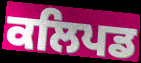
ਕਲਿਪਡ